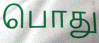
பொது